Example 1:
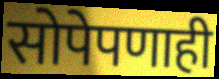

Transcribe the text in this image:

सोपेपणाही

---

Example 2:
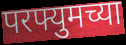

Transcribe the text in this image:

परफ्युमच्या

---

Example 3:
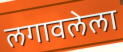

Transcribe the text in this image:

लगावलेला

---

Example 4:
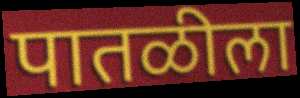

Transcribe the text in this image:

पातळीला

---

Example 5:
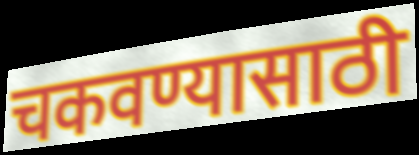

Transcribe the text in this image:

चकवण्यासाठी